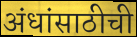
अंधांसाठीची